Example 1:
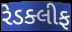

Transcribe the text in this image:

રેડક્લીફ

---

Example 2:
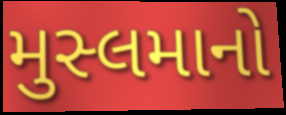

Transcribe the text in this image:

મુસ્લમાનો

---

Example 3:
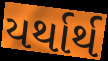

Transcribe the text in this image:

યર્થાર્થ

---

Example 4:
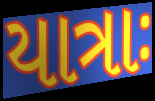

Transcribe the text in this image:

યાત્રાઃ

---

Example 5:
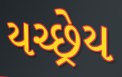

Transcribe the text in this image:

યચ્છ્રેય